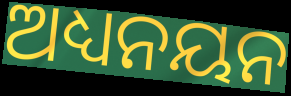
ଅଧ୍ୟନୟନ